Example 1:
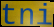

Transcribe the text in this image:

tni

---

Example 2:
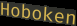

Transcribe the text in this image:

Hoboken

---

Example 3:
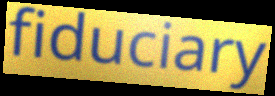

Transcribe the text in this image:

fiduciary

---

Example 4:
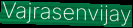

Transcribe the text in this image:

Vajrasenvijay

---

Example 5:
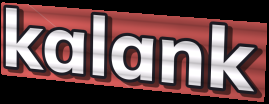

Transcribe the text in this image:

kalank